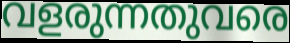
വളരുന്നതുവരെ